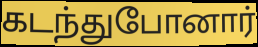
கடந்துபோனார்